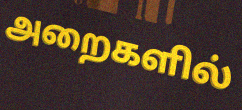
அறைகளில்